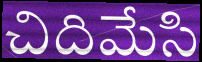
చిదిమేసి